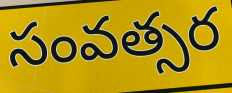
సంవత్సర